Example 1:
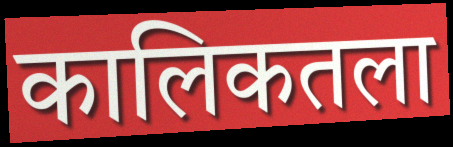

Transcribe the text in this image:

कालिकतला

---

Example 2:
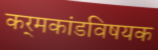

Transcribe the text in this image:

कर्मकांडविषयक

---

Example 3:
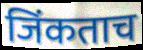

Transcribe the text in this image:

जिंकताच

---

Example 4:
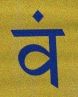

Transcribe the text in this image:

वं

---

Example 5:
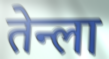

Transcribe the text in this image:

तेन्ला